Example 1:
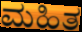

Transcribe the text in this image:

ಮಹಿತ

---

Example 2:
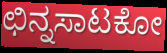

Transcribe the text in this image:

ಛಿನ್ನಸಾಟಕೋ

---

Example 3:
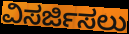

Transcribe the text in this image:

ವಿಸರ್ಜಿಸಲು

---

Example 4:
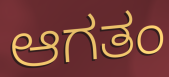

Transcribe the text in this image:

ಆಗತಂ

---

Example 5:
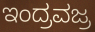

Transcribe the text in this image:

ಇಂದ್ರವಜ್ರ